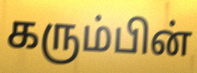
கரும்பின்